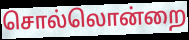
சொல்லொன்றை